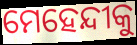
ମେହେନ୍ଦୀକୁ